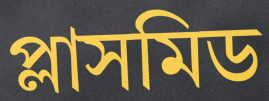
প্লাসমিড